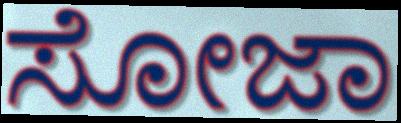
ಸೋಜಾ